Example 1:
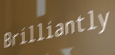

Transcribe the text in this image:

Brilliantly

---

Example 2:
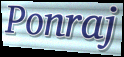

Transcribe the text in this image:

Ponraj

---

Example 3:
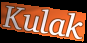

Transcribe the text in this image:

Kulak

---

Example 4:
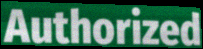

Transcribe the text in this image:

Authorized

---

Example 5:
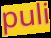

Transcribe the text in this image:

puli